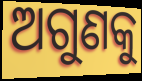
ଅଗୁଣକୁ